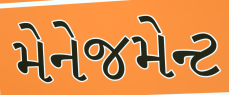
મેનેજમેન્ટ